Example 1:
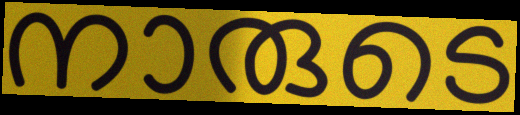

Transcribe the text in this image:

നാരുടെ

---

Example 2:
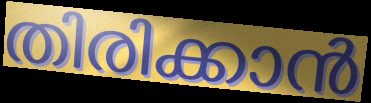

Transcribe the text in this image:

തിരിക്കാൻ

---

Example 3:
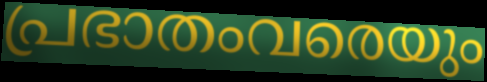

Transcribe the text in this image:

പ്രഭാതംവരെയും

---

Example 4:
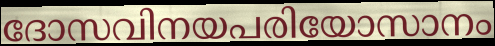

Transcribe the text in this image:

ദോസവിനയപരിയോസാനം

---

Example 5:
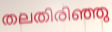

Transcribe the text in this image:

തലതിരിഞ്ഞു